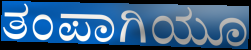
ತಂಪಾಗಿಯೂ